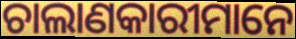
ଚାଲାଣକାରୀମାନେ